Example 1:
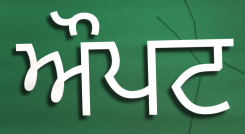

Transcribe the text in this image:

ਔਪਟ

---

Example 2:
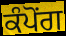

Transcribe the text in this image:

ਕੰਪੋਂਗ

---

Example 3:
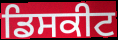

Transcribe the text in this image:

ਡਿਸਕੀਟ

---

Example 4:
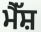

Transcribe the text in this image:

ਮੈੱਸ਼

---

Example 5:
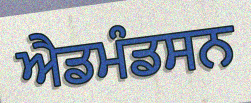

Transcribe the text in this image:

ਐਡਮੰਡਸਨ